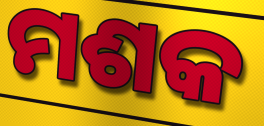
ମଶକ